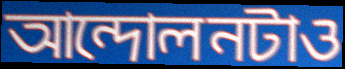
আন্দোলনটাও